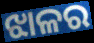
ଝାଳର